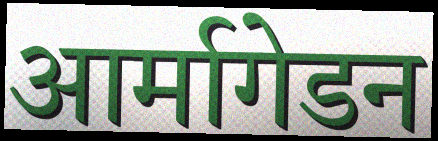
आर्मागेडन